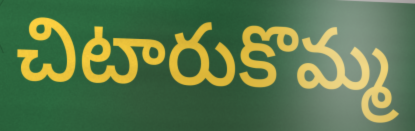
చిటారుకొమ్మ